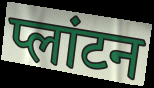
प्लांटन